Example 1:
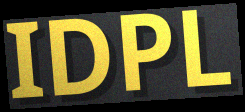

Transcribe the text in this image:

IDPL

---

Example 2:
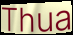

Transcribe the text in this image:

Thua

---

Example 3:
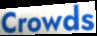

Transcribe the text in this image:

Crowds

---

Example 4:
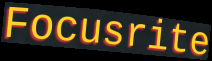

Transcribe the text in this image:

Focusrite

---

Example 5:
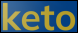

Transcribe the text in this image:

keto